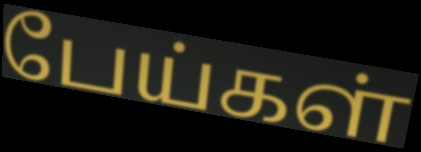
பேய்கள்